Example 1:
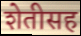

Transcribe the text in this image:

शेतीसह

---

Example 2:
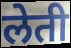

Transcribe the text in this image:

लेती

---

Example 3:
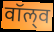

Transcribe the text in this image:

वॉल्व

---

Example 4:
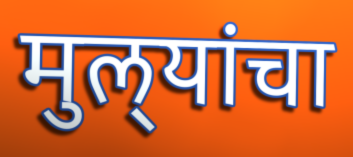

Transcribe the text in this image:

मुल्यांचा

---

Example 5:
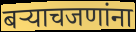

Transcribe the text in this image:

बऱ्याचजणांना